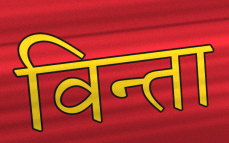
विन्ता